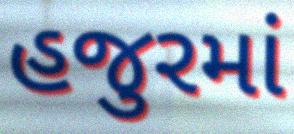
હજુરમાં